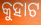
କୁହାଟ